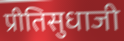
प्रीतिसुधाजी